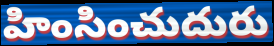
హింసించుదురు